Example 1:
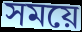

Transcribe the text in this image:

সময়ে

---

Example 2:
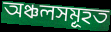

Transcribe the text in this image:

অঞ্চলসমূহত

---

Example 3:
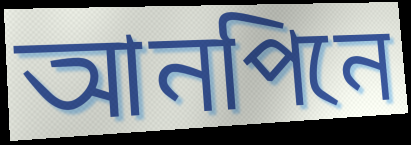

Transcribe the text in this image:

আনপিনে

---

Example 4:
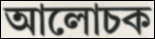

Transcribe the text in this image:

আলোচক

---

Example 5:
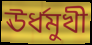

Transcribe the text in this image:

ঊৰ্ধমুখী